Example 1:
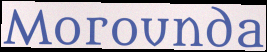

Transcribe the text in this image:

Morounda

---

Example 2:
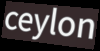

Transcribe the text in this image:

ceylon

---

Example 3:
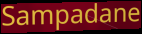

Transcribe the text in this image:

Sampadane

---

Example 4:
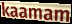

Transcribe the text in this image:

kaamam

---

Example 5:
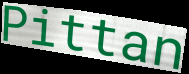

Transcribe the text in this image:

Pittan